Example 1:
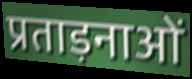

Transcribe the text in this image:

प्रताड़नाओं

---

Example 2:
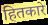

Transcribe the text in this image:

हितकारे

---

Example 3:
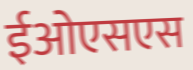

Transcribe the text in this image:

ईओएसएस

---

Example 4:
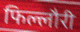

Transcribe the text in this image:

फिल्लौरी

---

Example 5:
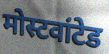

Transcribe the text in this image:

मोस्टवांटेड